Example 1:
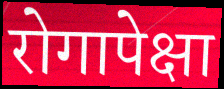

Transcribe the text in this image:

रोगापेक्षा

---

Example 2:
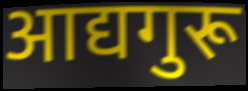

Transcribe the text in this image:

आद्यगुरू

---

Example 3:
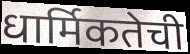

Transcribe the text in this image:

धार्मिकतेची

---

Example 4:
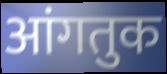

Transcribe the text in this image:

आंगतुक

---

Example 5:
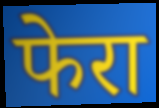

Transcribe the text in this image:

फेरा